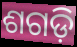
ଶଗଡ଼ି